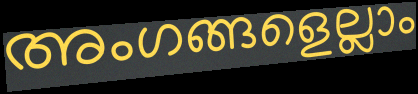
അംഗങ്ങളെല്ലാം